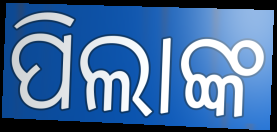
ପିଲାଙ୍କ